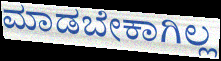
ಮಾಡಬೇಕಾಗಿಲ್ಲ